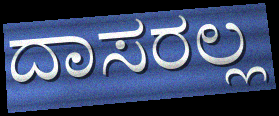
ದಾಸರಲ್ಲ